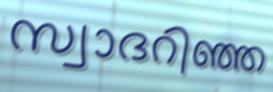
സ്വാദറിഞ്ഞ